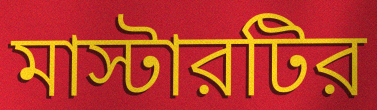
মাস্টারটির